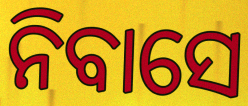
ନିବାସେ